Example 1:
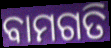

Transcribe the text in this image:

ବାମଗତି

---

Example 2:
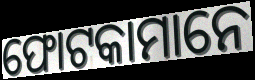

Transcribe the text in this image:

ଫୋଟକାମାନେ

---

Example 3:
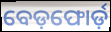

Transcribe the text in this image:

ବେଡ଼ଫୋର୍ଡ଼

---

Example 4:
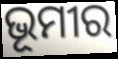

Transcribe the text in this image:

ଭୂମୀର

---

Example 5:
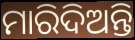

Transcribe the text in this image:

ମାରିଦିଅନ୍ତି